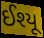
ઈશ્યૂ